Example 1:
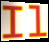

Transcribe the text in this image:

Il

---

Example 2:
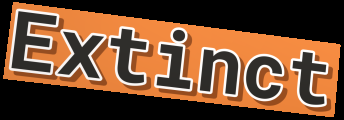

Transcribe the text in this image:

Extinct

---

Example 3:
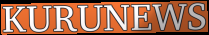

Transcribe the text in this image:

KURUNEWS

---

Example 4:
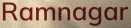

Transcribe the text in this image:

Ramnagar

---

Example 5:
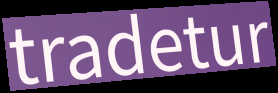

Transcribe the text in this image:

tradetur